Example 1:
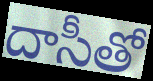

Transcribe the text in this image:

దాసీతో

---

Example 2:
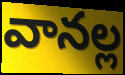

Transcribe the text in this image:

వానల్ల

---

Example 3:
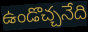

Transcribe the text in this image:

ఉండొచ్చనేది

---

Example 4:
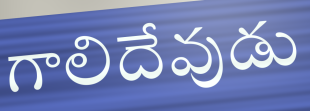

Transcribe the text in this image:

గాలిదేవుడు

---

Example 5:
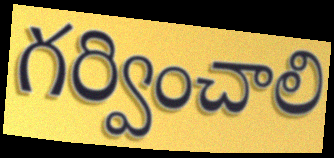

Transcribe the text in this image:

గర్వించాలి